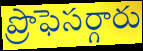
ప్రొఫెసర్గారు